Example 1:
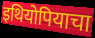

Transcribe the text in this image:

इथियोपियाचा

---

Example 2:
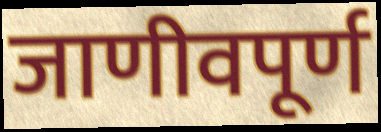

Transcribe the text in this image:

जाणीवपूर्ण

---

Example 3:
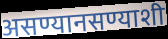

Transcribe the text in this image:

असण्यानसण्याशी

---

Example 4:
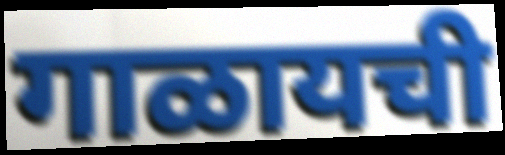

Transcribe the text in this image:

गाळायची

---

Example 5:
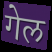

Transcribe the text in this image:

गेल